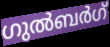
ഗുൽബർഗ്